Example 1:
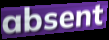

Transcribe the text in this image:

absent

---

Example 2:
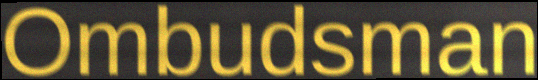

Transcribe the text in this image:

Ombudsman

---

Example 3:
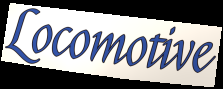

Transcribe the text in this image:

Locomotive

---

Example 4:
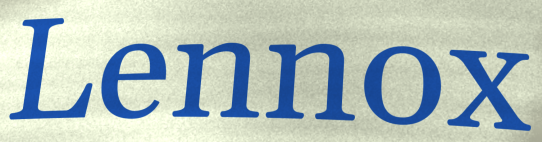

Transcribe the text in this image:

Lennox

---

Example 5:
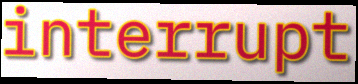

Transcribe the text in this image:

interrupt